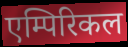
एम्पिरिकल